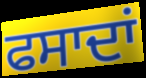
ਫਸਾਦਾਂ